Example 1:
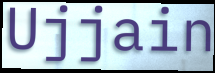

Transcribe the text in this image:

Ujjain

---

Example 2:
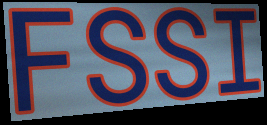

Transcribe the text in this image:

FSSI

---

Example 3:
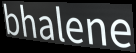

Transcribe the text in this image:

bhalene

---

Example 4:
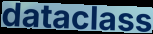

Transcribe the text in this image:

dataclass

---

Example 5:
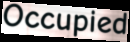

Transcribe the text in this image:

Occupied